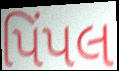
પિંપલ